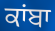
ਕਾਂਬਾ